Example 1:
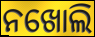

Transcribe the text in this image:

ନଖୋଲି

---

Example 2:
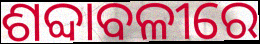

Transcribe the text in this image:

ଶବ୍ଦାବଳୀରେ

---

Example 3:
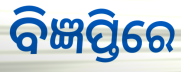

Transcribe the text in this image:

ବିଜ୍ଞପ୍ତିରେ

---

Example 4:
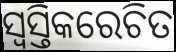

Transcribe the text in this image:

ସ୍ୱସ୍ତିକରେଚିତ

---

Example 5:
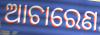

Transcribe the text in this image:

ଆଚାରେଣ